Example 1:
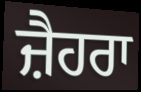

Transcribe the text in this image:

ਜ਼ੈਹਰਾ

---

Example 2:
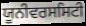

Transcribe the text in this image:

ਯੂਨੀਵਰਸਸਿਟੀ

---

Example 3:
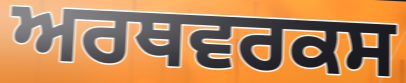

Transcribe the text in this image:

ਅਰਥਵਰਕਸ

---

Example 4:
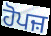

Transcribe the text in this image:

ਹੋਪਜ਼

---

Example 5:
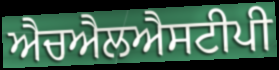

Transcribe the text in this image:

ਐਚਐਲਐਸਟੀਪੀ